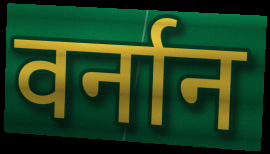
वर्नान